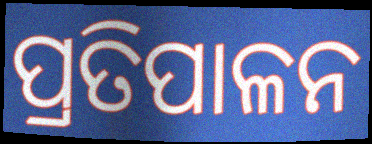
ପ୍ରତିପାଳନ